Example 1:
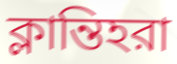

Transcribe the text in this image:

ক্লান্তিহরা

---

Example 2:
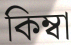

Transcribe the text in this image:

কিম্বা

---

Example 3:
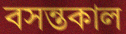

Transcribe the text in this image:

বসন্তকাল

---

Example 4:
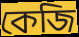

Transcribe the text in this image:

কেজি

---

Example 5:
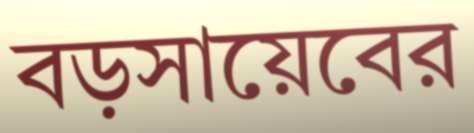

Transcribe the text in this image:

বড়সায়েবের